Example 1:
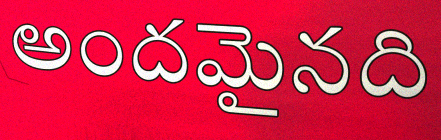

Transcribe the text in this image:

అందమైనది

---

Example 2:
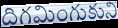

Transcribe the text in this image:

దిగమింగుకుని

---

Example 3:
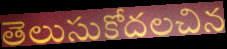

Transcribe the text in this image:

తెలుసుకోదలచిన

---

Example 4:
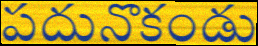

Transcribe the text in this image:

పదునొకండు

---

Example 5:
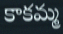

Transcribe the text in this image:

కాకమ్మ